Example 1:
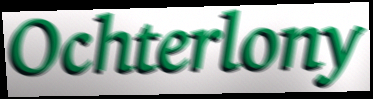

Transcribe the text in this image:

Ochterlony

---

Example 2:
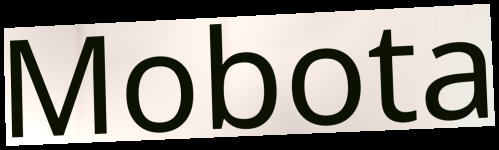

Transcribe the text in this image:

Mobota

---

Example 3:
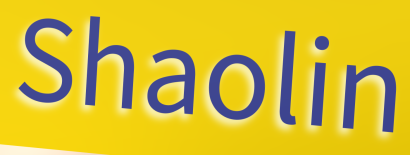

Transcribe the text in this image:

Shaolin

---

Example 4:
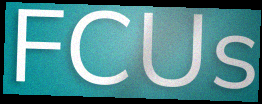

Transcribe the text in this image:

FCUs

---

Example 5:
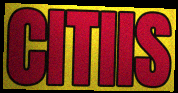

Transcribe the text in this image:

CITIIS